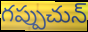
గప్పుచున్